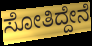
ಸೋತಿದ್ದೇನೆ